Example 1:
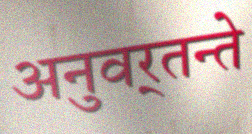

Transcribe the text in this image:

अनुवर्तन्ते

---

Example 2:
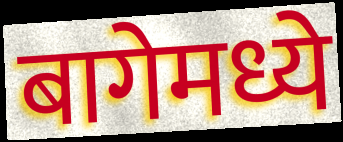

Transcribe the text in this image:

बागेमध्ये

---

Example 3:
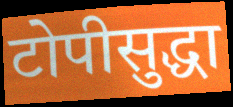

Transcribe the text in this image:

टोपीसुद्धा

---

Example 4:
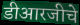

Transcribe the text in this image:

डीआरजीचे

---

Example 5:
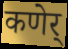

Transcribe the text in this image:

कणेर्